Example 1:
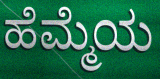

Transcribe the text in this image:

ಹೆಮ್ಮೆಯ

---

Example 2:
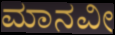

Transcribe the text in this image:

ಮಾನವೀ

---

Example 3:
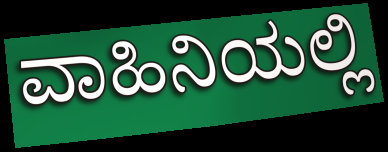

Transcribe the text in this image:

ವಾಹಿನಿಯಲ್ಲಿ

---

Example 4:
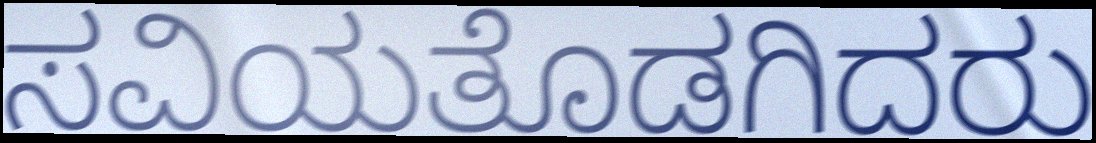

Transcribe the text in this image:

ಸವಿಯತೊಡಗಿದರು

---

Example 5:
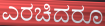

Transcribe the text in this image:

ಎರಚಿದರೂ